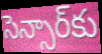
సెన్సార్‌కు